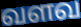
வளவ